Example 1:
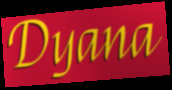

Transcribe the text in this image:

Dyana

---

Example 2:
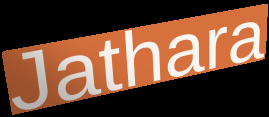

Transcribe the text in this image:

Jathara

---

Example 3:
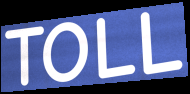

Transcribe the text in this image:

TOLL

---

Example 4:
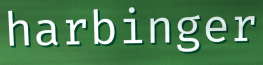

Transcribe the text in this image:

harbinger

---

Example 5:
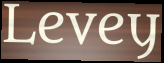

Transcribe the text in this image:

Levey